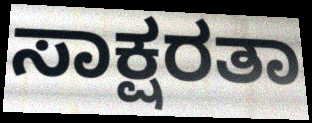
ಸಾಕ್ಷರತಾ